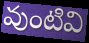
వుంటివి